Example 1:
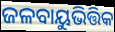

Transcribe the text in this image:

ଜଳବାୟୁଭିତ୍ତିକ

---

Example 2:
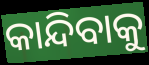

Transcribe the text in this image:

କାନ୍ଦିବାକୁ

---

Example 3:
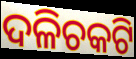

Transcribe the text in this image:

ଦଳିଚକଟି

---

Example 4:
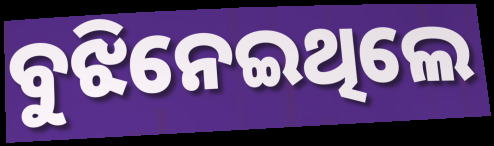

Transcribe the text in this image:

ବୁଝିନେଇଥିଲେ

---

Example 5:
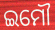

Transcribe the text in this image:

ଇମୌ